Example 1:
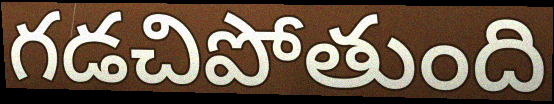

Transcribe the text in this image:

గడచిపోతుంది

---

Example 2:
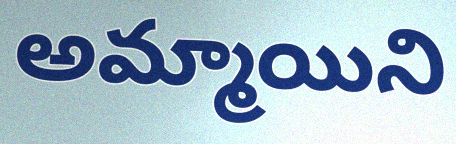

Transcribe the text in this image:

అమ్మాయిని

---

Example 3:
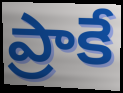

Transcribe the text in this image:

ప్రాకే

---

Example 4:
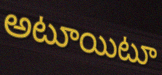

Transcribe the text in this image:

అటూయిటూ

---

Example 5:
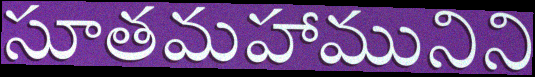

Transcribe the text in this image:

సూతమహామునిని